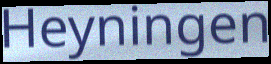
Heyningen